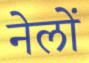
नेलों